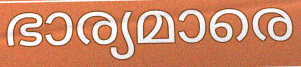
ഭാര്യമാരെ